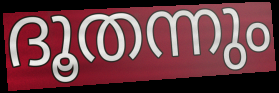
ദൂതന്നും